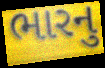
ભારનુ